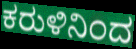
ಕರುಳಿನಿಂದ